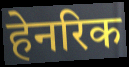
हेनरिक